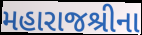
મહારાજશ્રીના